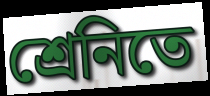
শ্রেনিতে